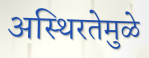
अस्थिरतेमुळे